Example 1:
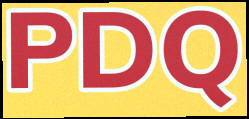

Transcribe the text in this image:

PDQ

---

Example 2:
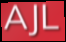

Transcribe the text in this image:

AJL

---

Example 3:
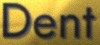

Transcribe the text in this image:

Dent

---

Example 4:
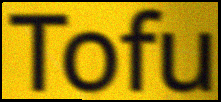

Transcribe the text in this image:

Tofu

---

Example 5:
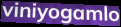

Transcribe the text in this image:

viniyogamlo